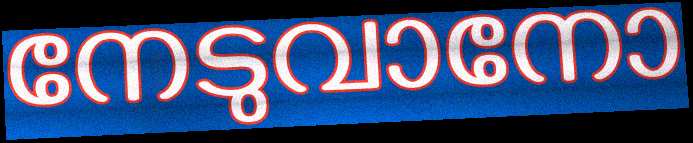
നേടുവാനോ